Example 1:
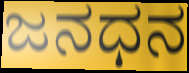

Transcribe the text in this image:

ಜನಧನ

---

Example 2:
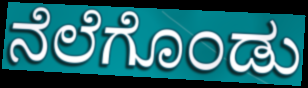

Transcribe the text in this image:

ನೆಲೆಗೊಂಡು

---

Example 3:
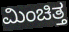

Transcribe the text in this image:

ಮಿಂಚಿತ್ತ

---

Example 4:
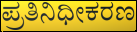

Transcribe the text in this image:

ಪ್ರತಿನಿಧೀಕರಣ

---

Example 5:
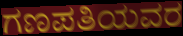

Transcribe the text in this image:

ಗಣಪತಿಯವರ